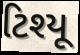
ટિશ્યૂ